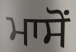
ਮਾਸੋਂ